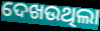
ଦେଖଉଥିଲା